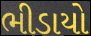
ભીડાયો